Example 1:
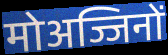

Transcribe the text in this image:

मोअज्जिनों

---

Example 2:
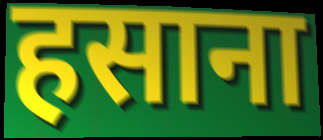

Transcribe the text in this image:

हसाना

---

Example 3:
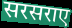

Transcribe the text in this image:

सरसराए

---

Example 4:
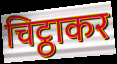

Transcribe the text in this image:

चिट्ठाकर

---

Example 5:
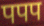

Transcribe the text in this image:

पपप